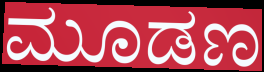
ಮೂಡಣ